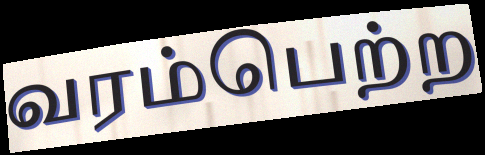
வரம்பெற்ற